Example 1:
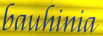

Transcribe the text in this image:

bauhinia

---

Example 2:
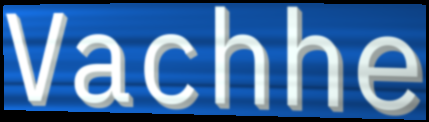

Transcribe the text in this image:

Vachhe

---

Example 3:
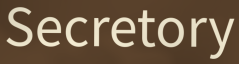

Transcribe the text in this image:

Secretory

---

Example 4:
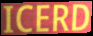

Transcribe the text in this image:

ICERD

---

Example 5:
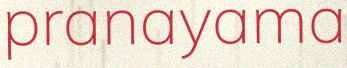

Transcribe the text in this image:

pranayama